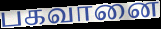
பகவானை